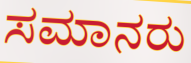
ಸಮಾನರು